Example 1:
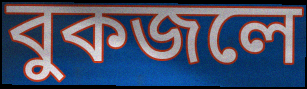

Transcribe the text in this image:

বুকজলে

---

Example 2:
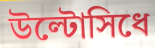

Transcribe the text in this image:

উল্টোসিধে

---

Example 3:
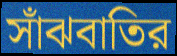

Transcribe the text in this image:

সাঁঝবাতির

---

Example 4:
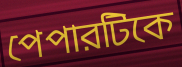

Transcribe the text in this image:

পেপারটিকে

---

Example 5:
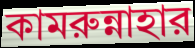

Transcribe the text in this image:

কামরুন্নাহার